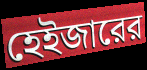
হেইজারের